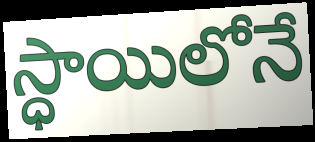
స్ధాయిలోనే